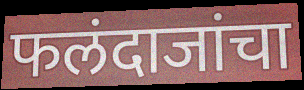
फलंदाजांचा